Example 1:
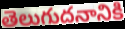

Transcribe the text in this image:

తెలుగుదనానికి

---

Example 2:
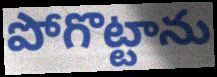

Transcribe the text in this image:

పోగొట్టాను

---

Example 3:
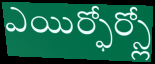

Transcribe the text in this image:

ఎయిర్ఫోర్స్లో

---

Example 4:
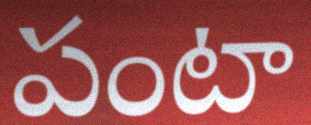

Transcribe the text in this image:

పంటా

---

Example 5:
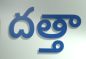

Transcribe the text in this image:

దత్తా